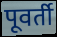
पूवर्ती